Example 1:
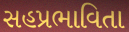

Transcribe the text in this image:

સહપ્રભાવિતા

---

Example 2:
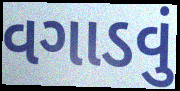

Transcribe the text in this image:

વગાડવું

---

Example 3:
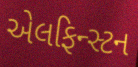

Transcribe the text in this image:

એલફિન્સ્ટન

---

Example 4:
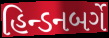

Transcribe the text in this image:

હિન્ડનબર્ગે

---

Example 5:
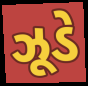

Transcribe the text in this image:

ઝૂડે